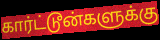
கார்ட்டூன்களுக்கு